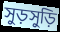
সুড়সুড়ি